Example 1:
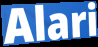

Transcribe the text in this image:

Alari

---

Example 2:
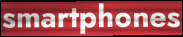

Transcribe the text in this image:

smartphones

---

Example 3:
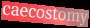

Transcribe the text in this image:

caecostomy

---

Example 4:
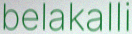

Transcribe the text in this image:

belakalli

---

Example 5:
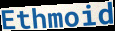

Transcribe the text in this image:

Ethmoid